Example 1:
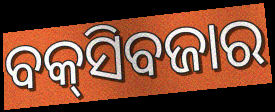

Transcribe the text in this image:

ବକ୍‌ସିବଜାର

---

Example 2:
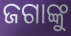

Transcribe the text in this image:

ଜଗାଙ୍କୁ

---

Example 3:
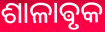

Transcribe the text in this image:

ଶାଳାଵୃକ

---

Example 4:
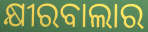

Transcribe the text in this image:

କ୍ଷୀରବାଲାର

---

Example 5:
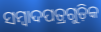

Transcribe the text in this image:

ସମ୍ୱାଦପତ୍ରଗୁଡ଼ିକ